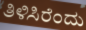
ತಿಳಿಸಿರೆಂದು